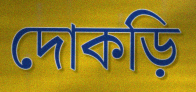
দোকড়ি